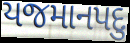
યજમાનપદુ